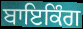
ਬਾਇਕਿੰਗ